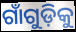
ଗାଁଗୁଡ଼ିକୁ